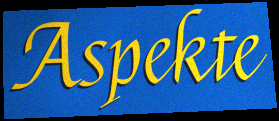
Aspekte